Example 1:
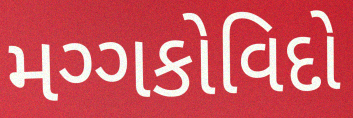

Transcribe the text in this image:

મગ્ગકોવિદો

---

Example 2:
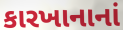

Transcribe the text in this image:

કારખાનાનાં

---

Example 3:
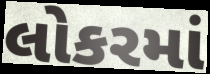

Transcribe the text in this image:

લોકરમાં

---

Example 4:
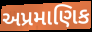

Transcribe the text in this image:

અપ્રમાણિક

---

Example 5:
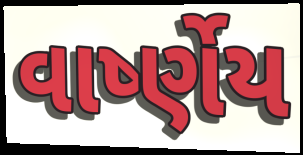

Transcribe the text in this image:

વાર્ષ્ણેય